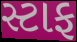
સ્ટાફ